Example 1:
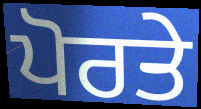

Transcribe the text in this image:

ਪੋਰਤੇ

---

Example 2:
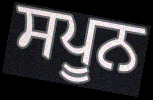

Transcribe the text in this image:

ਸਪੂਨ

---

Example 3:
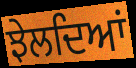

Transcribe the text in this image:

ਝੇਲਦਿਆਂ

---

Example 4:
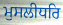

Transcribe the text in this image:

ਮੁਸਲੀਧਰਿ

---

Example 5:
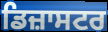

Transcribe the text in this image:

ਡਿਜ਼ਾਸਟਰ